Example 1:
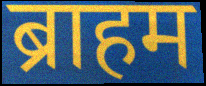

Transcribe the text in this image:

ब्राहम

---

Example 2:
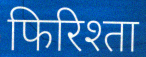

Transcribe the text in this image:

फिरिश्ता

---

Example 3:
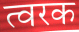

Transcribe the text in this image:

त्वरक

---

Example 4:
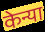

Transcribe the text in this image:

केन्या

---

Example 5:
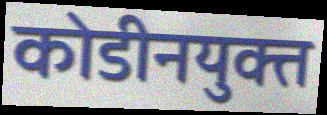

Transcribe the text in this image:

कोडीनयुक्त